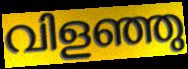
വിളഞ്ഞു